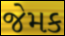
જેમક